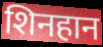
शिनहान